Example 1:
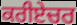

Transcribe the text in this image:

ਕਰੀਏਚਰ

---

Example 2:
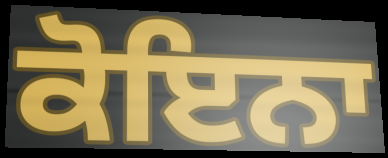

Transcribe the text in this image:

ਕੋਇਨਾ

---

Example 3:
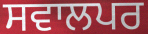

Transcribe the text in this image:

ਸਵਾਲਪਰ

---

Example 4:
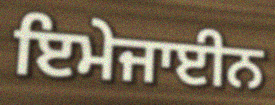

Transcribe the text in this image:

ਇਮੇਜਾਈਨ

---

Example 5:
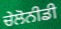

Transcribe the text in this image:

ਚੇਲੋਨੀਡੀ